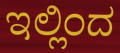
ಇಲ್ಲಿಂದ